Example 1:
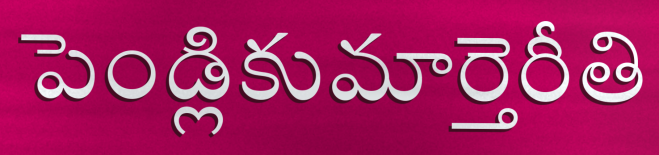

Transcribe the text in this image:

పెండ్లికుమార్తెరీతి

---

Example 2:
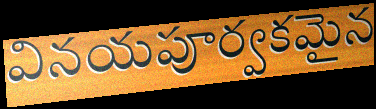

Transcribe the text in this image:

వినయపూర్వకమైన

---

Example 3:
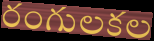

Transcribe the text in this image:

రంగులకల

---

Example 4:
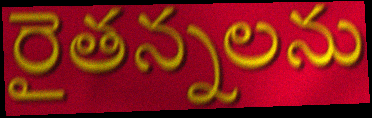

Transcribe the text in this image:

రైతన్నలను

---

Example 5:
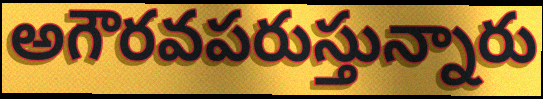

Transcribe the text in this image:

అగౌరవపరుస్తున్నారు